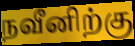
நவீனிற்கு